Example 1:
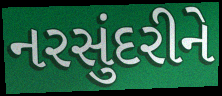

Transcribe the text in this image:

નરસુંદરીને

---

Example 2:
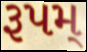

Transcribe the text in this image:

રૂપમ્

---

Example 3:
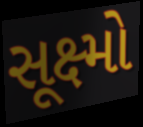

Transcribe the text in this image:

સૂક્ષ્મો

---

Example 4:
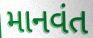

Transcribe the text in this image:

માનવંત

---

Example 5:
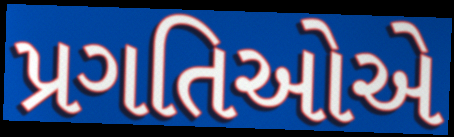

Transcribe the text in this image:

પ્રગતિઓએ